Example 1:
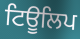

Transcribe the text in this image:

ਟਿਊਲਿਪ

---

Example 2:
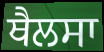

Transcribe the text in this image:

ਥੈਲਸਾ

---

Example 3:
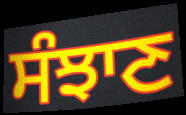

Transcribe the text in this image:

ਸੰਝਾਣ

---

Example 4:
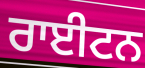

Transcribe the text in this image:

ਰਾਈਟਨ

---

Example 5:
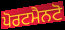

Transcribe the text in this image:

ਪੋਰਟਮੈਨਟੋ